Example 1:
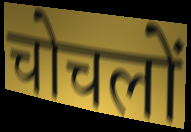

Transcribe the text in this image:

चोचलों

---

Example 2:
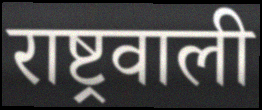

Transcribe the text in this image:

राष्ट्रवाली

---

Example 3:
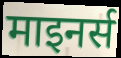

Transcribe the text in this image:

माइनर्स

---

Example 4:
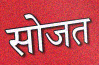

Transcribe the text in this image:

सोजत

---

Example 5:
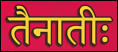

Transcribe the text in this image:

तैनातीः